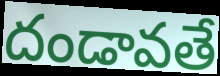
దండావతే